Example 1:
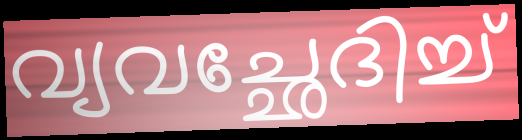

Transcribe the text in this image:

വ്യവച്ഛേദിച്ച്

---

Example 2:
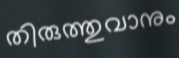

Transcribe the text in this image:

തിരുത്തുവാനും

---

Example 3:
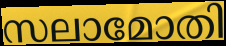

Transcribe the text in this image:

സലാമോതി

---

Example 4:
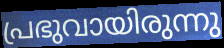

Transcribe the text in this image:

പ്രഭുവായിരുന്നു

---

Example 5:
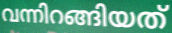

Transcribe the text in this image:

വന്നിറങ്ങിയത്